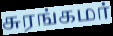
சுரங்கமர்